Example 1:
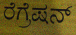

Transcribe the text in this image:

ರೆಗ್ರೆಷನ್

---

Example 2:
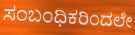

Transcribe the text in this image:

ಸಂಬಂಧಿಕರಿಂದಲೇ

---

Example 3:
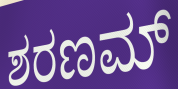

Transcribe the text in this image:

ಶರಣಮ್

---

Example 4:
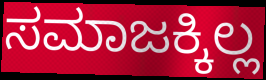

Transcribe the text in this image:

ಸಮಾಜಕ್ಕಿಲ್ಲ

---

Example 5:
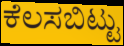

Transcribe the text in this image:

ಕೆಲಸಬಿಟ್ಟು